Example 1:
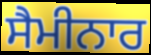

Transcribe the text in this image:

ਸੈਮੀਨਾਰ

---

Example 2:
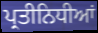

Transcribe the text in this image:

ਪ੍ਰਤੀਨਿਧੀਆਂ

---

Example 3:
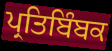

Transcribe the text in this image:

ਪ੍ਰਤਿਬਿੰਬਕ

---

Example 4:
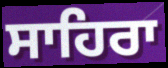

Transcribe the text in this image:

ਸਾਹਿਰਾ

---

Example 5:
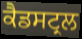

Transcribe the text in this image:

ਕੈਡਸਟ੍ਰਲ